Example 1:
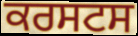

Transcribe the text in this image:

ਕਰਸਟਸ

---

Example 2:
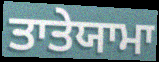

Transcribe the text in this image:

ਤਾਤੇਯਾਮਾ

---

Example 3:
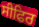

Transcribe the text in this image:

ਸੀਫਿਰ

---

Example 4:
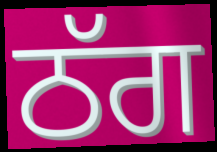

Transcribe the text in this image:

ਠੱਗ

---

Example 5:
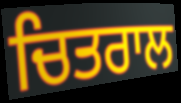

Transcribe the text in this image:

ਚਿਤਰਾਲ